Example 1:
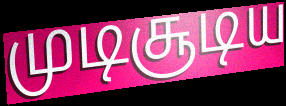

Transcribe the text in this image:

முடிசூடிய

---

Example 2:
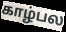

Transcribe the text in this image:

காழ்பல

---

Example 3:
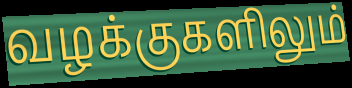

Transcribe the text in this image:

வழக்குகளிலும்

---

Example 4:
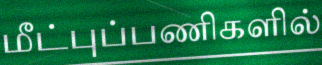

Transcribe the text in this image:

மீட்புப்பணிகளில்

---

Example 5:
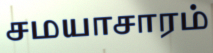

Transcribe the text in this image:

சமயாசாரம்